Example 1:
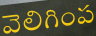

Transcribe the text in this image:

వెలిగింప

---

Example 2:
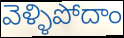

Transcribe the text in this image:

వెళ్ళిపోదాం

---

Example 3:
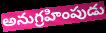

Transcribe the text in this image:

అనుగ్రహింపుడు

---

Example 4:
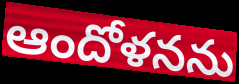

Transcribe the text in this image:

ఆందోళనను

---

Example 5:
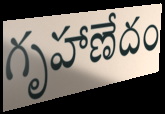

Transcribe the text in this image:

గృహాణేదం